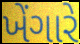
ખેંગારે